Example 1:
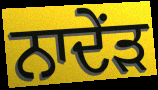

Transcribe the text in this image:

ਨਾਦੇਂੜ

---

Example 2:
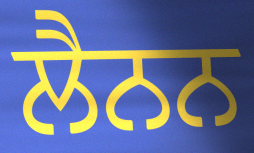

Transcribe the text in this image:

ਲੈਨਨ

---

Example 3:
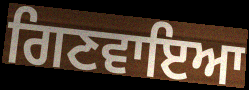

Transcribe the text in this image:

ਗਿਣਵਾਇਆ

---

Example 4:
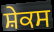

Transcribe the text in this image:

ਸ਼ੇਕਸ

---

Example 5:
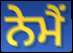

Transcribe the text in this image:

ਨੇਮੈਂ